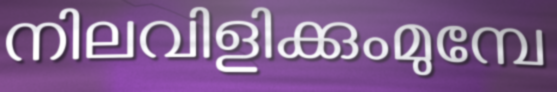
നിലവിളിക്കുംമുമ്പേ